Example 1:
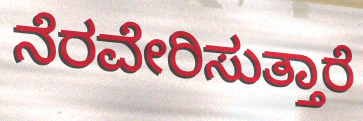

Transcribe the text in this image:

ನೆರವೇರಿಸುತ್ತಾರೆ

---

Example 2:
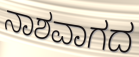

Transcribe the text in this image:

ನಾಶವಾಗದ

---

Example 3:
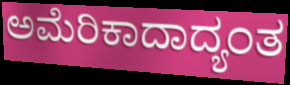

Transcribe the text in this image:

ಅಮೆರಿಕಾದಾದ್ಯಂತ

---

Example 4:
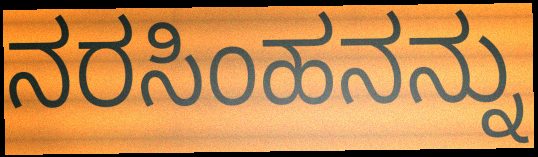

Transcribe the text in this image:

ನರಸಿಂಹನನ್ನು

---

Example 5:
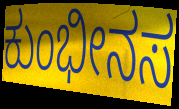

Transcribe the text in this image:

ಕುಂಭೀನಸ